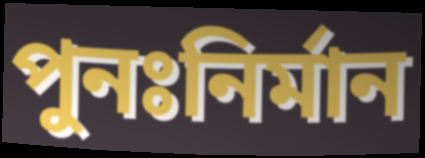
পুনঃনির্মান